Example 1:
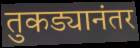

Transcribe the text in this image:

तुकड्यानंतर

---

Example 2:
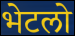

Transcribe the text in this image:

भेटलो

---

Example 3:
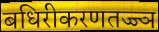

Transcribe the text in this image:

बधिरीकरणतज्ज्ञ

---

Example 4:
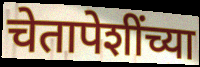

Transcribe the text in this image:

चेतापेशींच्या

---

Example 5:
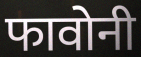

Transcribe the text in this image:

फावोनी